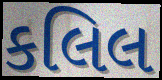
કલિલ